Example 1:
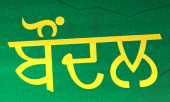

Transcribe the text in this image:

ਬੌਂਦਲ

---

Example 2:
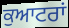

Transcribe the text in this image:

ਕੁਆਟਰਾਂ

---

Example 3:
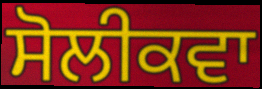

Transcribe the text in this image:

ਸੋਲੀਕਵਾ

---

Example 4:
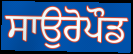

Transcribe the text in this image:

ਸਾਉਰੋਪੌਡ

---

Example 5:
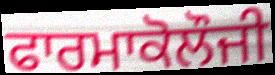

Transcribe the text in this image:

ਫਾਰਮਾਕੋਲੌਜੀ